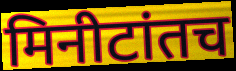
मिनीटांतच